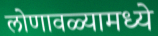
लोणावळ्यामध्ये